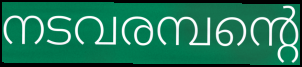
നടവരമ്പന്റെ